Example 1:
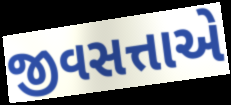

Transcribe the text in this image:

જીવસત્તાએ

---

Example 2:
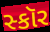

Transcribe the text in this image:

સ્કૉર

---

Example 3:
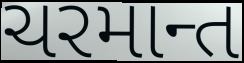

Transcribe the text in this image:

ચરમાન્ત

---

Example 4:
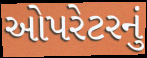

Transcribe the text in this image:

ઓપરેટરનું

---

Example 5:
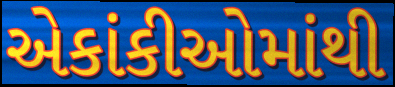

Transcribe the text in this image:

એકાંકીઓમાંથી